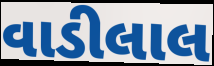
વાડીલાલ